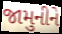
જામુનીને